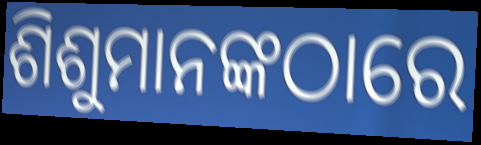
ଶିଶୁମାନଙ୍କଠାରେ